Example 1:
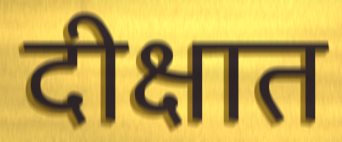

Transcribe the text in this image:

दीक्षात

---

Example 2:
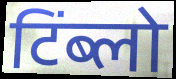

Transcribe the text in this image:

टिंब्लो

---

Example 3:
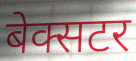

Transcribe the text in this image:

बेक्सटर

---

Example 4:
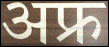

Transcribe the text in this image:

अफ्र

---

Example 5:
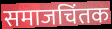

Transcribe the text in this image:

समाजचिंतक